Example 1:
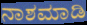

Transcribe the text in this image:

ನಾಶಮಾಡಿ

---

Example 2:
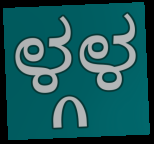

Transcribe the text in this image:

ಳ್ಗಳ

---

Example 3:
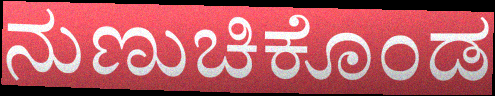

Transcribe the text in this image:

ನುಣುಚಿಕೊಂಡ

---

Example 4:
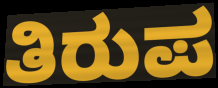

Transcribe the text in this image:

ತಿರುಪ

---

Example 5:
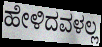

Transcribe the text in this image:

ಹೇಳಿದವಳಲ್ಲ